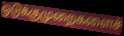
ஒடுக்குமுறைகளைச்